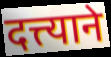
दत्त्याने